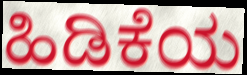
ಹಿಡಿಕೆಯ